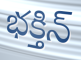
భక్తిన్